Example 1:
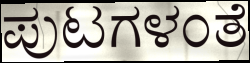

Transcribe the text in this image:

ಪುಟಗಳಂತೆ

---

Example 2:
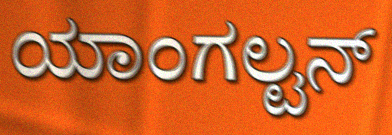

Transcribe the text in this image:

ಯಾಂಗಲ್ಟನ್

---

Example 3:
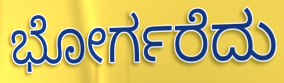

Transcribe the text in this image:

ಭೋರ್ಗರೆದು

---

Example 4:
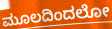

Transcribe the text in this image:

ಮೂಲದಿಂದಲೋ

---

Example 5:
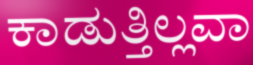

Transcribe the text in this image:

ಕಾಡುತ್ತಿಲ್ಲವಾ